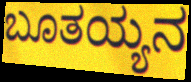
ಬೂತಯ್ಯನ